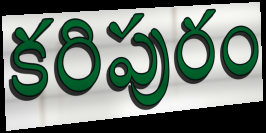
కరిపురం